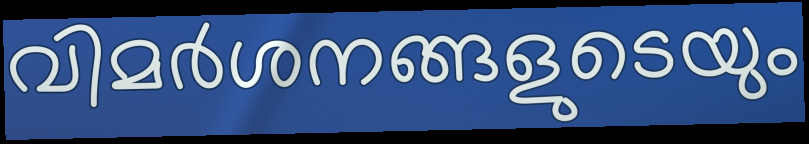
വിമർശനങ്ങളുടെയും